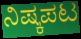
ನಿಷ್ಕಪಟ